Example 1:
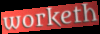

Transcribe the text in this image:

worketh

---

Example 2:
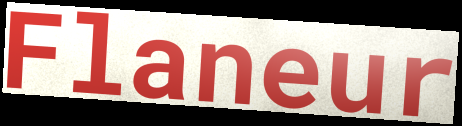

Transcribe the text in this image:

Flaneur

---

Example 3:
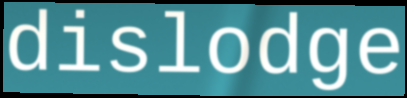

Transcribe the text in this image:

dislodge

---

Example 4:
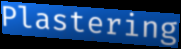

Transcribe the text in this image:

Plastering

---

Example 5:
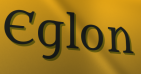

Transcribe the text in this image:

Eglon